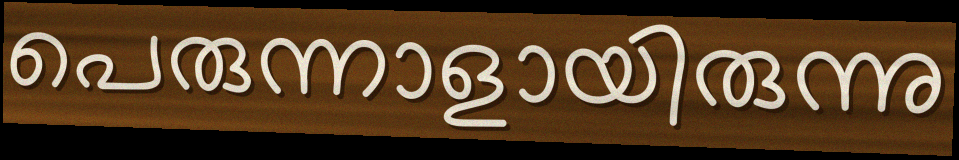
പെരുന്നാളായിരുന്നു